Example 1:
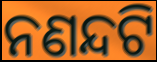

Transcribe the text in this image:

ନଣନ୍ଦଟି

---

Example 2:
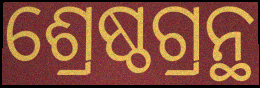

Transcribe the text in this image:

ଶ୍ରେଷ୍ଠଗ୍ରନ୍ଥ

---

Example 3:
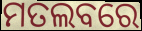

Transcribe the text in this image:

ମତଲବରେ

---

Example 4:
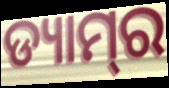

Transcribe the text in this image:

ଡ୍ୟାମ୍‍ର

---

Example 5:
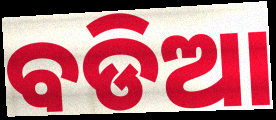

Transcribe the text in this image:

ବଡିଆ